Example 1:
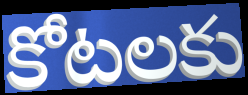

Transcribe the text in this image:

కోటలకు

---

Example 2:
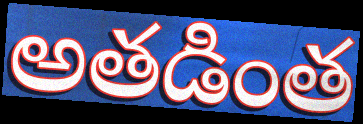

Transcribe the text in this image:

అతడింత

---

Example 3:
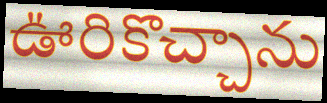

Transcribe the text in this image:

ఊరికొచ్చాను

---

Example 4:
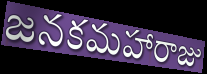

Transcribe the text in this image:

జనకమహారాజు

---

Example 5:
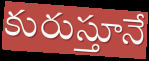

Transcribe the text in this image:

కురుస్తూనే